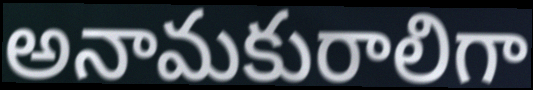
అనామకురాలిగా